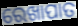
ରେଖାପାତ